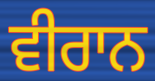
ਵੀਰਾਨ